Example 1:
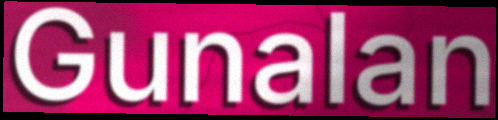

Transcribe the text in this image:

Gunalan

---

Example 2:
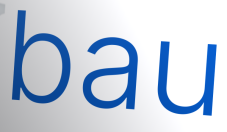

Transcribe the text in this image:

bau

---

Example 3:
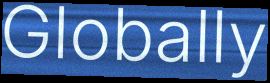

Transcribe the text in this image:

Globally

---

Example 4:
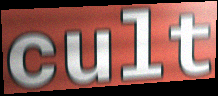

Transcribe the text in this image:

cult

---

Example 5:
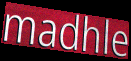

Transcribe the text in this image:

madhle